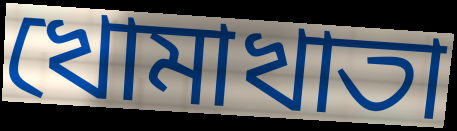
খোমাখাতা